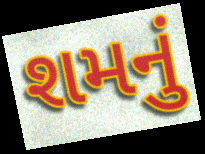
શમનું